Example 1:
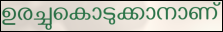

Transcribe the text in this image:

ഉരച്ചുകൊടുക്കാനാണ്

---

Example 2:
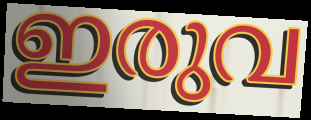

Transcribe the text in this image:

ഇരുവ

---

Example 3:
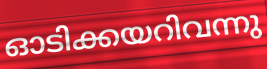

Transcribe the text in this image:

ഓടിക്കയറിവന്നു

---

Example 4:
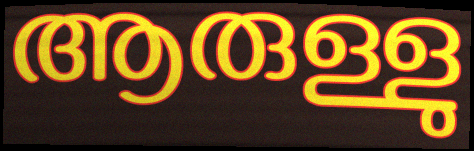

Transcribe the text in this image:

ആരുള്ളു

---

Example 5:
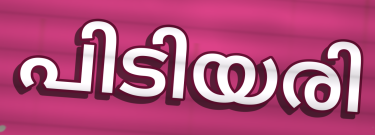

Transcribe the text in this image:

പിടിയരി